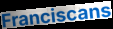
Franciscans